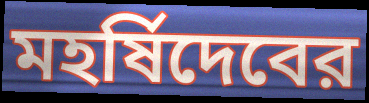
মহর্ষিদেবের